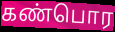
கண்பொர